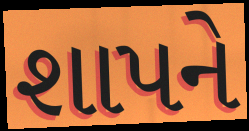
શાપને